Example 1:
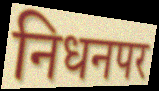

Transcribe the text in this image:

निधनपर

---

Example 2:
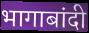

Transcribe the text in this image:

भागाबांदी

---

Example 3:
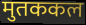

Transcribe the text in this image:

मुतककल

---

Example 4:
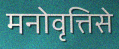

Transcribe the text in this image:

मनोवृत्तिसे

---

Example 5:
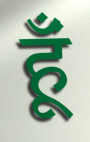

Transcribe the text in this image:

हूँं